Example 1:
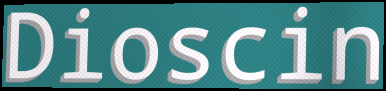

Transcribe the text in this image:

Dioscin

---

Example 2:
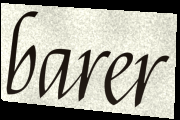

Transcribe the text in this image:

barer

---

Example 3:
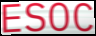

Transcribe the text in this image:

ESOC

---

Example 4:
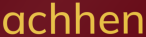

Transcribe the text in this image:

achhen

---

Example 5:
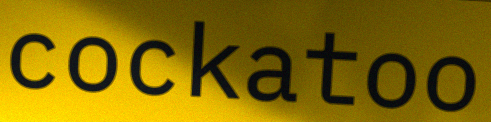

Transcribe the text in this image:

cockatoo